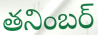
తనింబర్